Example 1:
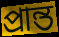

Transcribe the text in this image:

প্ৰান্ত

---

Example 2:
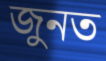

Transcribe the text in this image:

জুনত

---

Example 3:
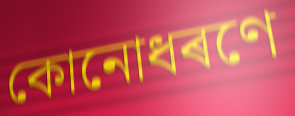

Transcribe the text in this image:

কোনোধৰণে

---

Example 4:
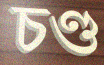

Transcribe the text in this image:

চণ্ড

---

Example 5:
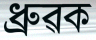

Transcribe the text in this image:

ধ্ৰুৱক